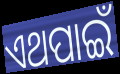
ଏଥପାଇଁ